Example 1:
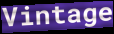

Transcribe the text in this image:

Vintage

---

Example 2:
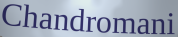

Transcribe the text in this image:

Chandromani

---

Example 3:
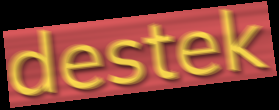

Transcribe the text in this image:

destek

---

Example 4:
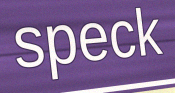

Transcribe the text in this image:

speck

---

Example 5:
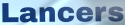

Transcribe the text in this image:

Lancers